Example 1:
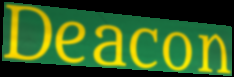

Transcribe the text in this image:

Deacon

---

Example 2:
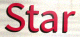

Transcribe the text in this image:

Star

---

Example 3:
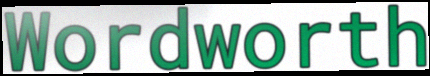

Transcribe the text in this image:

Wordworth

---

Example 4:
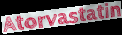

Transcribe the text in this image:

Atorvastatin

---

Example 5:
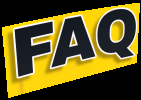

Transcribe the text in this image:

FAQ